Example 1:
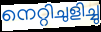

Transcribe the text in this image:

നെറ്റിചുളിച്ചു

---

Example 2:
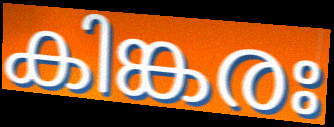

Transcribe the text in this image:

കിങ്കരഃ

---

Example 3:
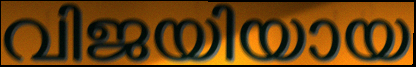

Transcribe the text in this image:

വിജയിയായ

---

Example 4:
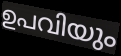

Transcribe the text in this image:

ഉപവിയും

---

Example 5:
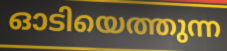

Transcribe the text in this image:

ഓടിയെത്തുന്ന